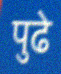
पुढे